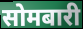
सोमबारी